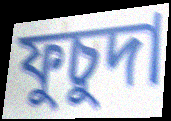
ফুচুদা